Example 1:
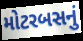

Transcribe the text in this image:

મોટરબસનું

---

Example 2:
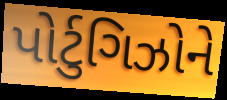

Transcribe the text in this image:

પોર્ટુગિઝોને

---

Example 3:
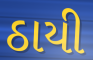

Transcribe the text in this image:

ઠાયી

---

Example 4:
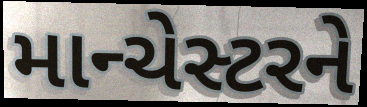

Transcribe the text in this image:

માન્ચેસ્ટરને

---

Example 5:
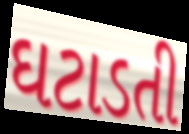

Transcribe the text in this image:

ઘટાડતી